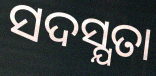
ସଦସ୍ଯତା